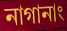
নাগানাং